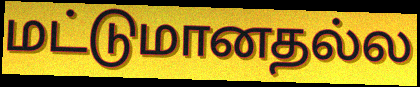
மட்டுமானதல்ல